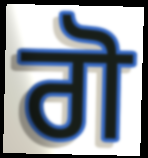
ਗੋ